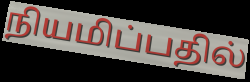
நியமிப்பதில்